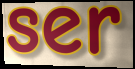
ser